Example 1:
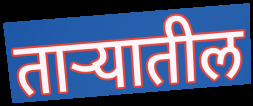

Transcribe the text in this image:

ताऱ्यातील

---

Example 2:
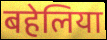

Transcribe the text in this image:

बहेलिया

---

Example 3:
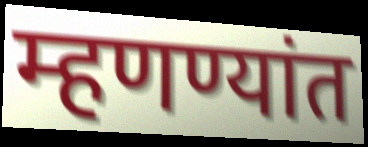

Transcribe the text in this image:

म्हणण्यांत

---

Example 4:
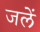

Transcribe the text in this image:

जलें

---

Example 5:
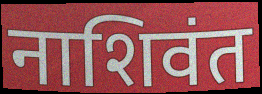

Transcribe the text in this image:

नाशिवंत